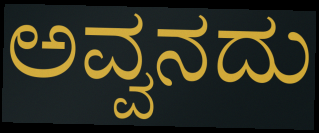
ಅವ್ವನದು